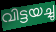
വിട്ടയച്ചു